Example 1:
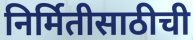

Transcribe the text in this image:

निर्मितीसाठीची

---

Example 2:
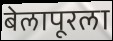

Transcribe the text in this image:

बेलापूरला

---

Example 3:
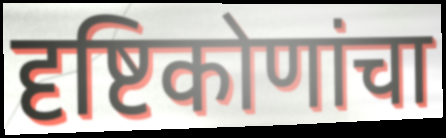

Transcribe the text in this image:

दृष्टिकोणांचा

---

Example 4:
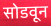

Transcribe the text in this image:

सोडवून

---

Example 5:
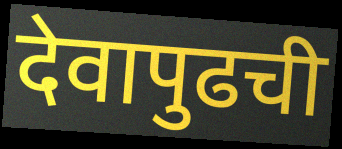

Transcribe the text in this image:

देवापुढची